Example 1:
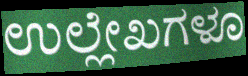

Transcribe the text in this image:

ಉಲ್ಲೇಖಗಳೂ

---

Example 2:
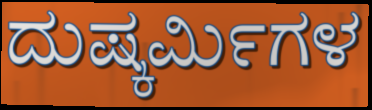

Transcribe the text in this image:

ದುಷ್ಕರ್ಮಿಗಳ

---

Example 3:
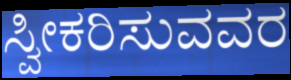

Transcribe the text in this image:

ಸ್ವೀಕರಿಸುವವರ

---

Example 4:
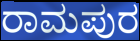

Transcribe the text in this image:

ರಾಮಪುರ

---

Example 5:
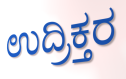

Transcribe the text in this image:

ಉದ್ರಿಕ್ತರ